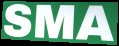
SMA